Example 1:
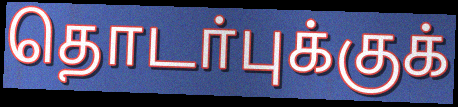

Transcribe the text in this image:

தொடர்புக்குக்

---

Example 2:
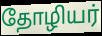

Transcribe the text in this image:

தோழியர்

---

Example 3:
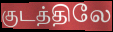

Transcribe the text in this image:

குடத்திலே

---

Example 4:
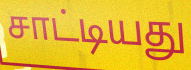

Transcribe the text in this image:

சாட்டியது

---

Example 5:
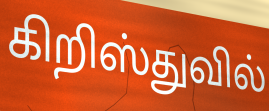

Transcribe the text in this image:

கிறிஸ்துவில்